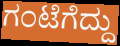
ಗಂಟೆಗೆದ್ದು